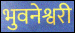
भुवनेश्वरी